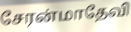
சேரன்மாதேவி